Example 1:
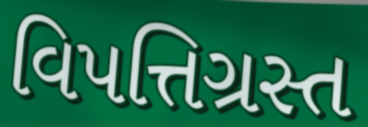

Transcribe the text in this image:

વિપત્તિગ્રસ્ત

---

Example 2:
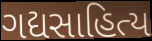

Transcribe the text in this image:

ગદ્યસાહિત્ય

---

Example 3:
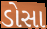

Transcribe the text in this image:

ડોસા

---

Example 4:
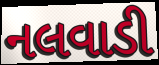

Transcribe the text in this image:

નલવાડી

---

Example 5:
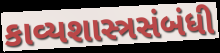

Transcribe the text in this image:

કાવ્યશાસ્ત્રસંબંધી